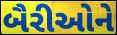
બૈરીઓને